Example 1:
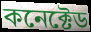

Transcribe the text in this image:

কনেক্টেড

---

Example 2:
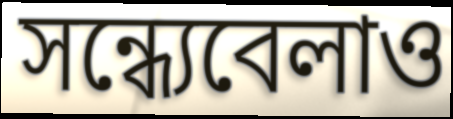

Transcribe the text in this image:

সন্ধ্যেবেলাও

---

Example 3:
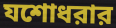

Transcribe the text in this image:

যশোধরার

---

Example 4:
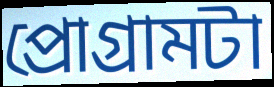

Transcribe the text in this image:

প্রোগ্রামটা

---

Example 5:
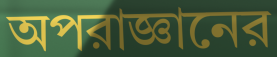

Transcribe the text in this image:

অপরাজ্ঞানের